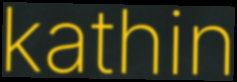
kathin